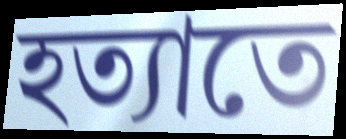
হত্যাতে